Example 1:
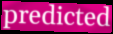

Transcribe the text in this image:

predicted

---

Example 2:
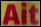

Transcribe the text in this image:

Ait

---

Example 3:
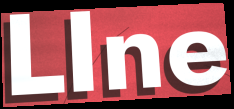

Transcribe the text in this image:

LIne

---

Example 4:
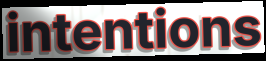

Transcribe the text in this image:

intentions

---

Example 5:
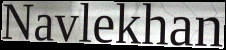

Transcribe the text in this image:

Navlekhan